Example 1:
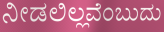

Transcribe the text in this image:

ನೀಡಲಿಲ್ಲವೆಂಬುದು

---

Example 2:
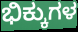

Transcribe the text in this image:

ಭಿಕ್ಕುಗಳ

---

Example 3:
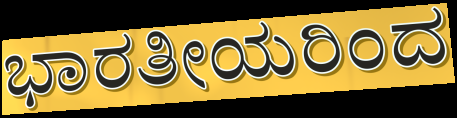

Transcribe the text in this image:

ಭಾರತೀಯರಿಂದ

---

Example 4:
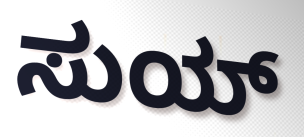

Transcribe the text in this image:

ಸುಯ್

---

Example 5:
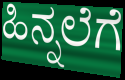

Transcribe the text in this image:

ಹಿನ್ನಲೆಗೆ